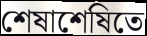
শেষাশেষিতে